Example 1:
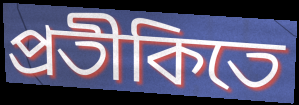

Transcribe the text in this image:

প্রতীকিতে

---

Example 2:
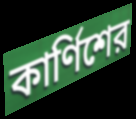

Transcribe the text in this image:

কার্ণিশের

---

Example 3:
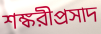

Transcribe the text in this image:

শঙ্করীপ্রসাদ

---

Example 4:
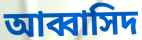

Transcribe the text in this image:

আব্বাসিদ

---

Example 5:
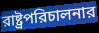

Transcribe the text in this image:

রাষ্ট্রপরিচালনার